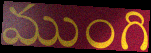
ముంగి